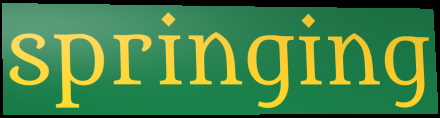
springing